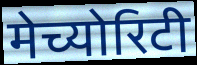
मेच्योरिटी